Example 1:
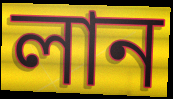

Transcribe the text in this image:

লান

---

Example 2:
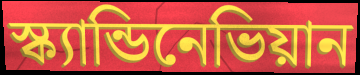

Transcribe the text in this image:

স্ক্যান্ডিনেভিয়ান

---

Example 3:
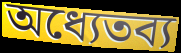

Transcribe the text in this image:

অধ্যেতব্য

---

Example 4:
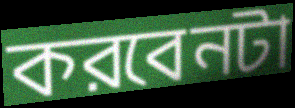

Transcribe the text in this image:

করবেনটা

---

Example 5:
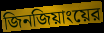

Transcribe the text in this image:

জিনজিয়াংয়ের